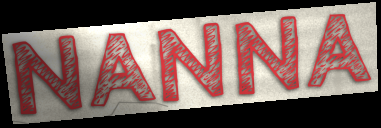
NANNA